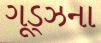
ગૂડ્ઝના